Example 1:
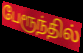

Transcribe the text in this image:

பேரூந்தில்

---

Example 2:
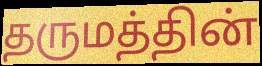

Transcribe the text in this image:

தருமத்தின்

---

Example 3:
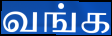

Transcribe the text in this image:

வங்க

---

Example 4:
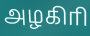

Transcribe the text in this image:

அழகிரி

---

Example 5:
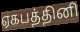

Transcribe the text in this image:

ஏகபத்தினி